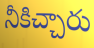
నీకిచ్చారు